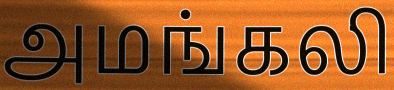
அமங்கலி